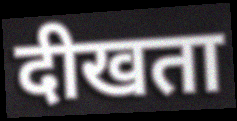
दीखता